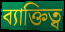
ব্যাক্তিত্ব